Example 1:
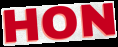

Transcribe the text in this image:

HON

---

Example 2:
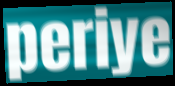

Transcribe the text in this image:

periye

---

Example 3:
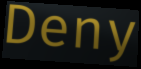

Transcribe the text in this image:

Deny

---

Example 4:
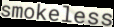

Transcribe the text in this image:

smokeless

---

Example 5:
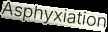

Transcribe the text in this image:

Asphyxiation